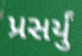
પ્રસર્યું